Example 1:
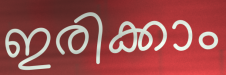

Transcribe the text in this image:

ഇരിക്കാം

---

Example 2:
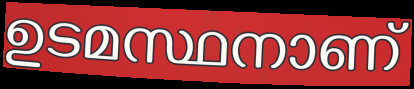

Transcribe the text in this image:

ഉടമസ്ഥനാണ്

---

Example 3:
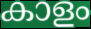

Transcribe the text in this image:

കാളം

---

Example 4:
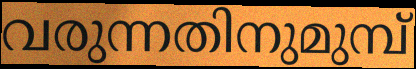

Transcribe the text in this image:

വരുന്നതിനുമുമ്പ്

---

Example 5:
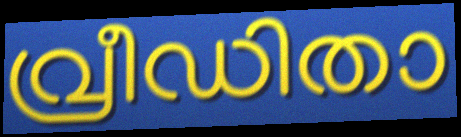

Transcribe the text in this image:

വ്രീഡിതാ